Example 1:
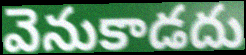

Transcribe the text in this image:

వెనుకాడదు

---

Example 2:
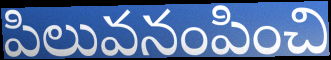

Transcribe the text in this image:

పిలువనంపించి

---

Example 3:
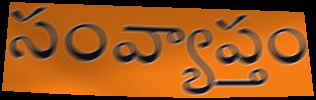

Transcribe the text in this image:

సంవ్యాప్తం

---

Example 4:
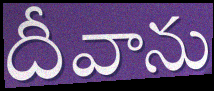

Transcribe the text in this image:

దీవాను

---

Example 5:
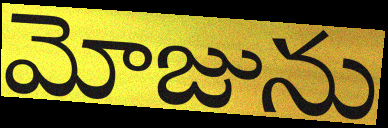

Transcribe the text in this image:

మోజును